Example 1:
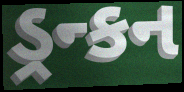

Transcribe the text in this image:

ડ્રન્કન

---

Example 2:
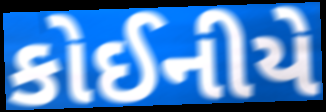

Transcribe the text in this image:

કોઈનીયે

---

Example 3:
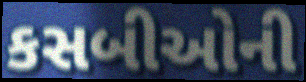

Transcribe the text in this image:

કસબીઓની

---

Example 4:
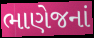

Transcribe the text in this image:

ભાણેજનાં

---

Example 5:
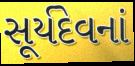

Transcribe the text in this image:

સૂર્યદેવનાં